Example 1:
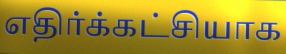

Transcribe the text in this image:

எதிர்க்கட்சியாக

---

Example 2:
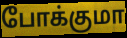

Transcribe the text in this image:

போக்குமா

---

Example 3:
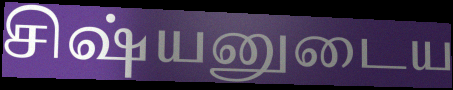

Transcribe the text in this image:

சிஷ்யனுடைய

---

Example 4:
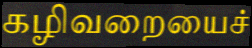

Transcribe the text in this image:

கழிவறையைச்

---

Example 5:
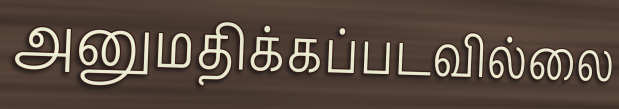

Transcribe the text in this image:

அனுமதிக்கப்படவில்லை